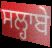
ਸਲ੍ਹਾਬੇ